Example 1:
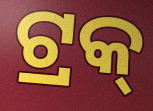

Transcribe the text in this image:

ଟ୍ରକ୍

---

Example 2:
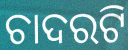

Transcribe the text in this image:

ଚାଦରଟି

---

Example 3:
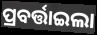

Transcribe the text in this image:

ପ୍ରବର୍ତ୍ତାଇଲା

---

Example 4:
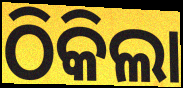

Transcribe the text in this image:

ଠିକିଲା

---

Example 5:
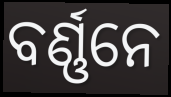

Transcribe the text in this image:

ବର୍ଣ୍ଣନେ